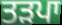
ਤੜਪਾ